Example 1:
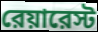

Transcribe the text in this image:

রেয়ারেস্ট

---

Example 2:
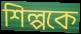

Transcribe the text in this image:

শিল্পকে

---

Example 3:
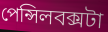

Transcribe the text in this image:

পেন্সিলবক্সটা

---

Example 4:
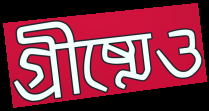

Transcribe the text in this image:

গ্রীষ্মেও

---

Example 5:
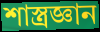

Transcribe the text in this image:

শাস্ত্রজ্ঞান